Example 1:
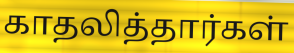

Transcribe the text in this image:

காதலித்தார்கள்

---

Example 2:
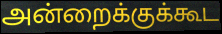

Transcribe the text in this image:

அன்றைக்குக்கூட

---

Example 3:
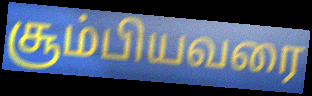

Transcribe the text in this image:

சூம்பியவரை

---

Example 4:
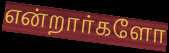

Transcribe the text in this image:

என்றார்களோ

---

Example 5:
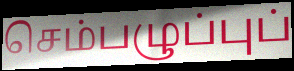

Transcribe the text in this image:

செம்பழுப்புப்